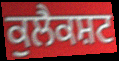
ਕੁਲੈਕਸ਼ਟ